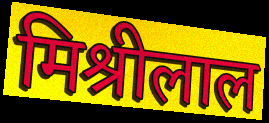
मिश्रीलाल